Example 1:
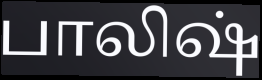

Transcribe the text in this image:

பாலிஷ்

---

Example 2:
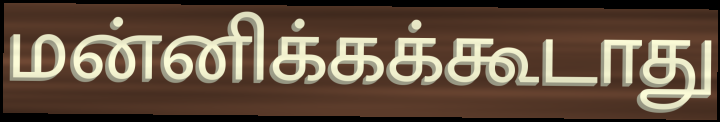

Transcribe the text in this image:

மன்னிக்கக்கூடாது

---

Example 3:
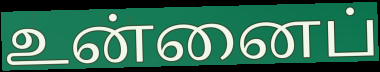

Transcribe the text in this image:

உன்னைப்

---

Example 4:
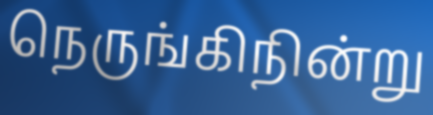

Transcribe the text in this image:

நெருங்கிநின்று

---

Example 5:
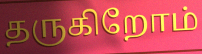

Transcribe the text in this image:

தருகிறோம்